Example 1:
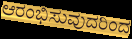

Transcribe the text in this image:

ಆರಂಭಿಸುವುದರಿಂದ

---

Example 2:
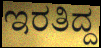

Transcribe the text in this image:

ಇರತಿದ್ದ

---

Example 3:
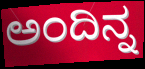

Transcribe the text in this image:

ಅಂದಿನ್ನ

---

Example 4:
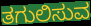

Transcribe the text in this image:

ತಗುಲಿಸುವ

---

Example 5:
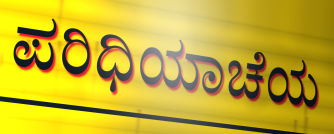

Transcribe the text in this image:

ಪರಿಧಿಯಾಚೆಯ